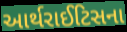
આર્થરાઈટિસના